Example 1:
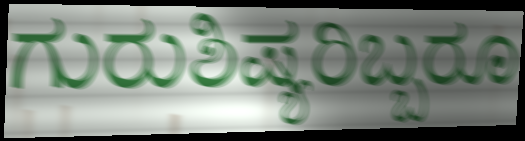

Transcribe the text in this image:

ಗುರುಶಿಷ್ಯರಿಬ್ಬರೂ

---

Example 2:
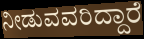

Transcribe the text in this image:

ನೀಡುವವರಿದ್ದಾರೆ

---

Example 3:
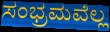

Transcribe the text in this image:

ಸಂಭ್ರಮವೆಲ್ಲ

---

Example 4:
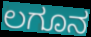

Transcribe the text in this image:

ಲಗೂನ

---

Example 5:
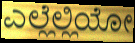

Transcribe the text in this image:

ಎಲ್ಲೆಲ್ಲಿಯೋ